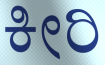
ಕೀರಿ